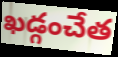
ఖడ్గంచేత